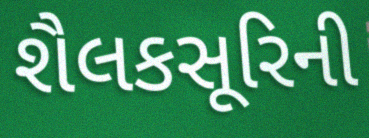
શૈલકસૂરિની